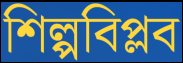
শিল্পবিপ্লব